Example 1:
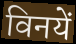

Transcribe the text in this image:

विनयें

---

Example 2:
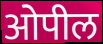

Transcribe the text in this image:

ओपील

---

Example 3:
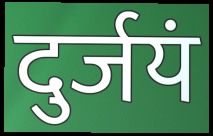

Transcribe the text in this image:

दुर्जयं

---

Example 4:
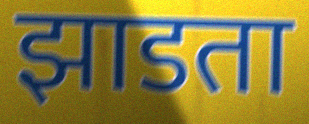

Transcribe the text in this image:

झाडता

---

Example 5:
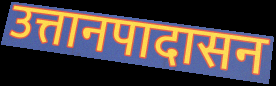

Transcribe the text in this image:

उत्तानपादासन